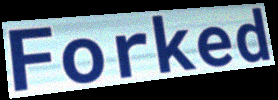
Forked